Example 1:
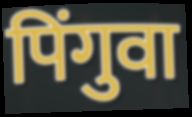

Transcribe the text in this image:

पिंगुवा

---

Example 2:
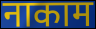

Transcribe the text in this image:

नाकाम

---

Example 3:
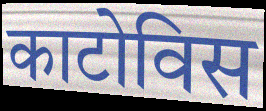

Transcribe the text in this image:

काटोविस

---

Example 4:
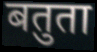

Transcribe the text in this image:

बतुता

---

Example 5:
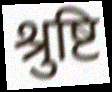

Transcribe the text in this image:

श्रुष्टि